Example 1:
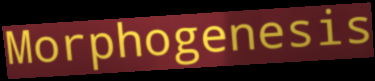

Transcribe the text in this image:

Morphogenesis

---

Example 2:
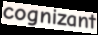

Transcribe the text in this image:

cognizant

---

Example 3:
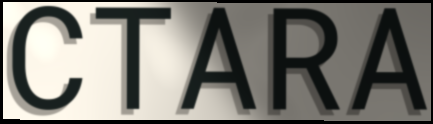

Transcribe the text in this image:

CTARA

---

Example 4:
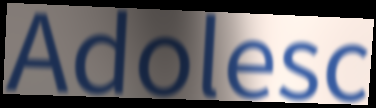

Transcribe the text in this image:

Adolesc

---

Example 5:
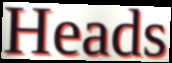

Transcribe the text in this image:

Heads